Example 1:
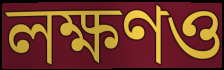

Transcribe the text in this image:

লক্ষণও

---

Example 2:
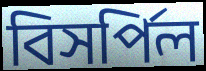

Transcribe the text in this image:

বিসর্পিল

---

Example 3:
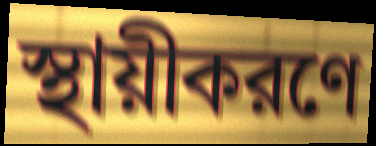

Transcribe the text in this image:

স্থায়ীকরণে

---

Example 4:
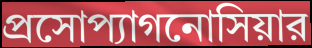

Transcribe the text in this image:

প্রসোপ্যাগনোসিয়ার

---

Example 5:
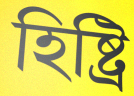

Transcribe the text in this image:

হিষ্ট্রি